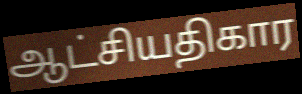
ஆட்சியதிகார